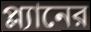
প্ল্যানের